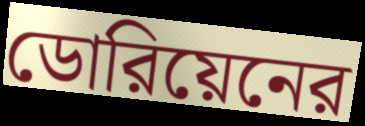
ডোরিয়েনের